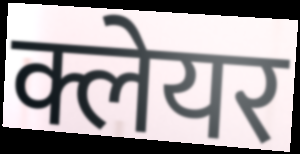
क्लेयर